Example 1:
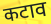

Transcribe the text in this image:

कटाव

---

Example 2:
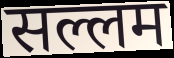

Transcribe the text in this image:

सल्लम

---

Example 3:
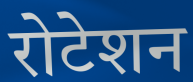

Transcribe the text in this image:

रोटेशन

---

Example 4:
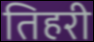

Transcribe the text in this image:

तिहरी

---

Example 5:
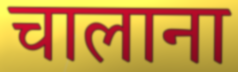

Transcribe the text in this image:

चालाना